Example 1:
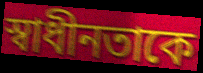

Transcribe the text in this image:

স্বাধীনতাকে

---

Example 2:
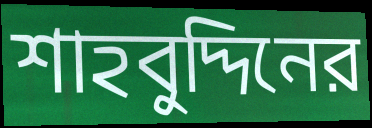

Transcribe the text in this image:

শাহবুদ্দিনের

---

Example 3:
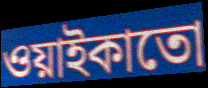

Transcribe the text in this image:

ওয়াইকাতো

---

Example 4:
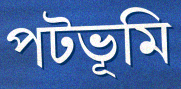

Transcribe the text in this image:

পটভূমি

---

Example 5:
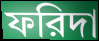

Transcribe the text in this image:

ফরিদা